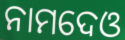
ନାମଦେଓ